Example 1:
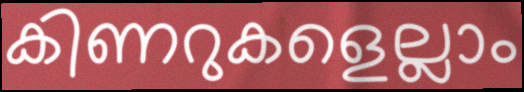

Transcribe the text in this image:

കിണറുകളെല്ലാം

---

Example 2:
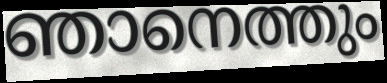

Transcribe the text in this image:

ഞാനെത്തും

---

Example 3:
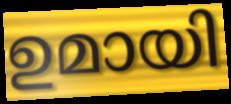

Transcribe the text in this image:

ഉമായി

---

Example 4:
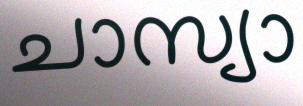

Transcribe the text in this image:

ചാസ്യാ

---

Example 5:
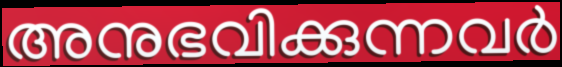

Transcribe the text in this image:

അനുഭവിക്കുന്നവർ